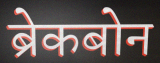
ब्रेकबोन